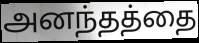
அனந்தத்தை